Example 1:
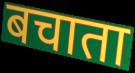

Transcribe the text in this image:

बचाता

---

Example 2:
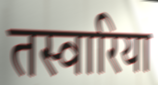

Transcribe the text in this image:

तस्वारिया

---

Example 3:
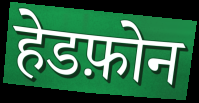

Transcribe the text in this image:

हेडफ़ोन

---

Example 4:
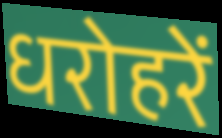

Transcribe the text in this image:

धरोहरें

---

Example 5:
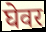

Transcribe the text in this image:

घेवर